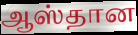
ஆஸ்தான